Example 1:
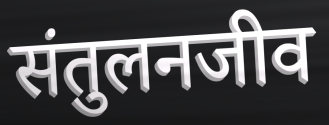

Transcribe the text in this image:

संतुलनजीव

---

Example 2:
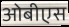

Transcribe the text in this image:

ओबीएस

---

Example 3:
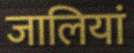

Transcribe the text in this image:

जालियां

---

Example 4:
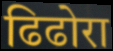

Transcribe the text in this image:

ढिढोरा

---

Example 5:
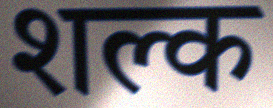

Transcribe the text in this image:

शल्क